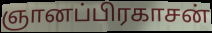
ஞானப்பிரகாசன்